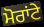
ਮੋਰਾਂਟੇ